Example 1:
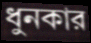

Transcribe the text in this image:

ধুনকার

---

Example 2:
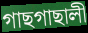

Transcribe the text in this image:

গাছগাছালী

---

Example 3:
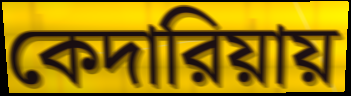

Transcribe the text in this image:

কেদারিয়ায়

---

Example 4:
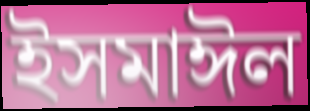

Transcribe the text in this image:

ইসমাঈল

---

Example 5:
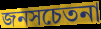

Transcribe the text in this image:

জনসচেতনা